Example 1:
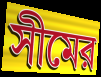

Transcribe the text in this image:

সীমের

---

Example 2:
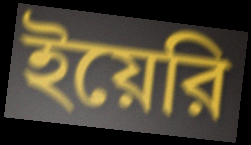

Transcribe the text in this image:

ইয়েরি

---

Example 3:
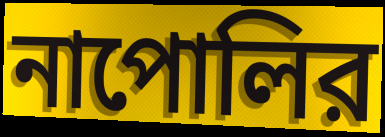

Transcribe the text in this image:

নাপোলির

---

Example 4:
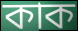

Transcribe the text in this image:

কাক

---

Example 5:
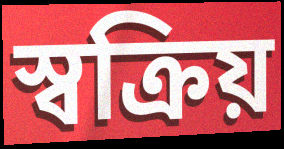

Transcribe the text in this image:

স্বক্রিয়